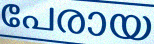
പേരായ